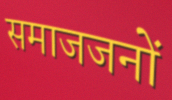
समाजजनों